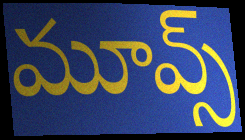
మూవ్స్